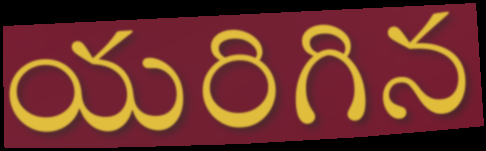
యరిగిన